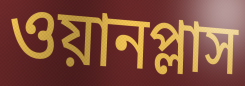
ওয়ানপ্লাস